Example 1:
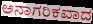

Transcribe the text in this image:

ಅನಾಗರಿಕವಾದ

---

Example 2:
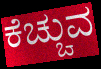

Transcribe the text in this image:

ಕೆಚ್ಚುವ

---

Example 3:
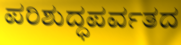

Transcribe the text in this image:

ಪರಿಶುದ್ಧಪರ್ವತದ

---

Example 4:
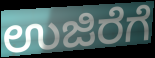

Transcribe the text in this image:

ಉಜಿರೆಗೆ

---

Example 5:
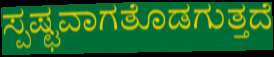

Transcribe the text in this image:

ಸ್ಪಷ್ಟವಾಗತೊಡಗುತ್ತದೆ